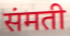
संमती